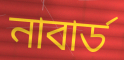
নাবার্ড